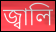
জ্বালি